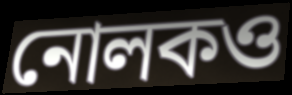
নোলকও